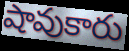
షావుకారు